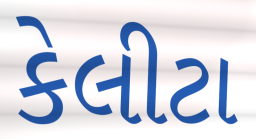
કેલીટા